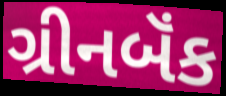
ગ્રીનબૅંક